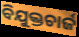
ବିଯୁକ୍ତଚାର୍ଜ